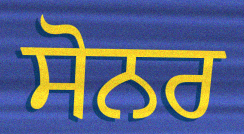
ਸੋਨਰ